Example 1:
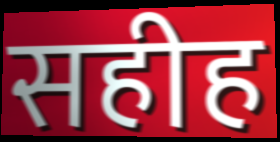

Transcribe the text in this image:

सहीह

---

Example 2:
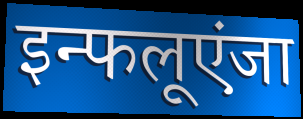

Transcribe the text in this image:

इन्फलूएंजा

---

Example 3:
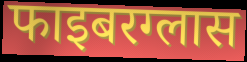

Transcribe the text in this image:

फाइबरग्लास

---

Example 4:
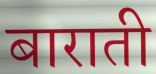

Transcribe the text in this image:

बाराती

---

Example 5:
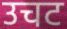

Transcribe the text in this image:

उचट